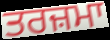
ਤਰਜ਼ਮਾ